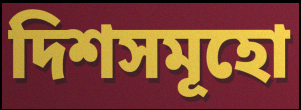
দিশসমূহো